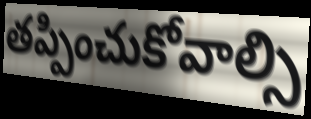
తప్పించుకోవాల్సి